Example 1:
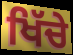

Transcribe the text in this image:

ਖਿੱਚੇ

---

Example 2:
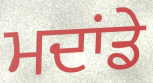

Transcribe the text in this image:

ਮਦਾਂਡੇ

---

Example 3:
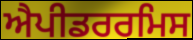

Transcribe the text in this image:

ਐਪੀਡਰਰਮਿਸ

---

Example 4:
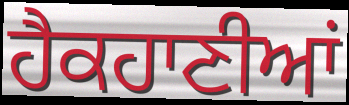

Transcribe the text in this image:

ਹੈਕਹਾਣੀਆਂ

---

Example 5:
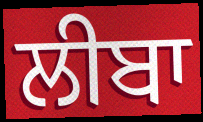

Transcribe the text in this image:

ਲੀਬਾ